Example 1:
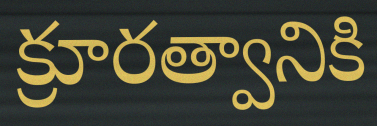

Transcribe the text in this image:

క్రూరత్వానికి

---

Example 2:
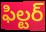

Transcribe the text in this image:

ఫిల్టర్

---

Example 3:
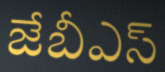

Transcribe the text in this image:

జేబీఎస్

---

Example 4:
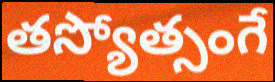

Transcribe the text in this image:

తస్యోత్సంగే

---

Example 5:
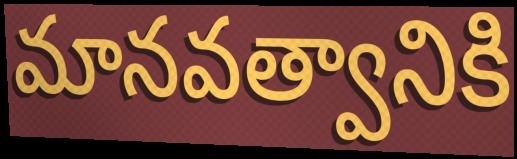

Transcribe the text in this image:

మానవత్వానికి